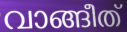
വാങ്ങീത്